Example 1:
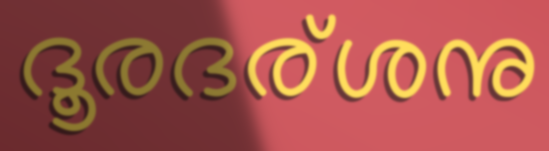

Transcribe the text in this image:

ദൂരദര്ശനു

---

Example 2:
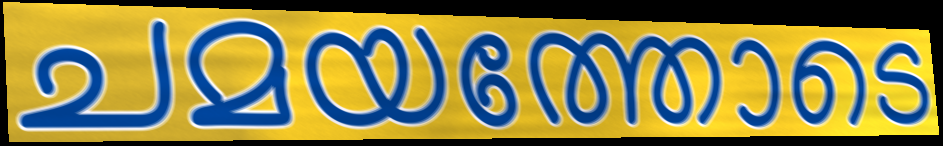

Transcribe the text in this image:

ചമയത്തോടെ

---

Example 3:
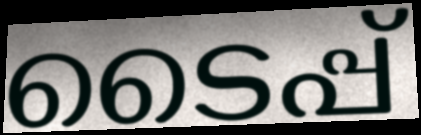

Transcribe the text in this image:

ടൈപ്പ്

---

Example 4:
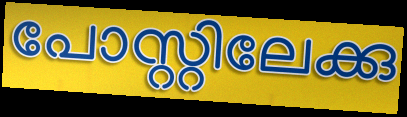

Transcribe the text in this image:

പോസ്റ്റിലേക്കു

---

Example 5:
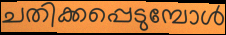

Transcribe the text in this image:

ചതിക്കപ്പെടുമ്പോൾ